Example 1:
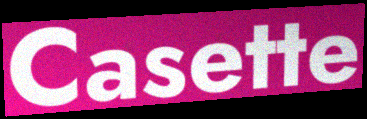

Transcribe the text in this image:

Casette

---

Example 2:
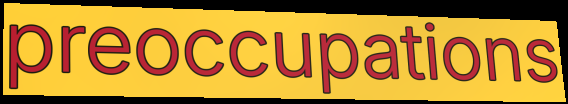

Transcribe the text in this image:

preoccupations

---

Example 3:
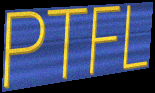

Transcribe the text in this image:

PTFL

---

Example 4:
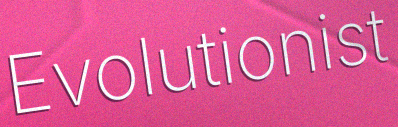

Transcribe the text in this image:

Evolutionist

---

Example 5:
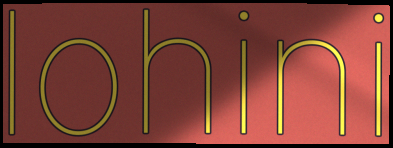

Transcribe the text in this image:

lohini